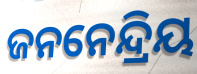
ଜନନେନ୍ଦ୍ରିୟ